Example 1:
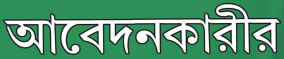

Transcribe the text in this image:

আবেদনকারীর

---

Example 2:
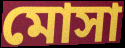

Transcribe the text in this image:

মোসা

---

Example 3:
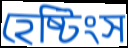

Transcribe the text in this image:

হেষ্টিংস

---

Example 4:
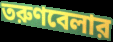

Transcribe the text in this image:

তরুণবেলার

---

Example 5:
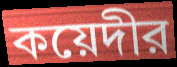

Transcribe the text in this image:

কয়েদীর